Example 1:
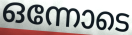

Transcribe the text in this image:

ഒന്നോടെ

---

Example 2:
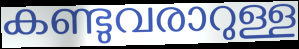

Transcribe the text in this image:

കണ്ടുവരാറുള്ള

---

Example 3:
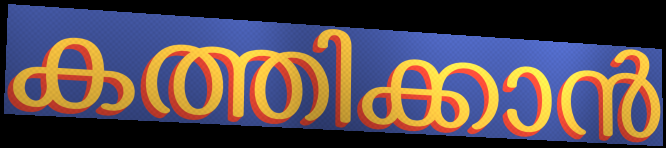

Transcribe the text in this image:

കത്തിക്കാൻ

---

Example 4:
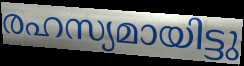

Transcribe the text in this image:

രഹസ്യമായിട്ടു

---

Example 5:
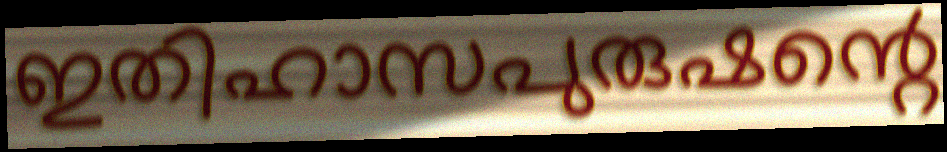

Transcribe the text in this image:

ഇതിഹാസപുരുഷന്റെ